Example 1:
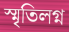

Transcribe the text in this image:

স্মৃতিলগ্ন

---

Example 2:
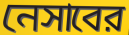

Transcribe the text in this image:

নেসাবের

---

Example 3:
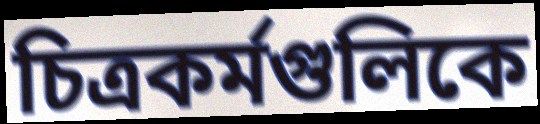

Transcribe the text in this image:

চিত্রকর্মগুলিকে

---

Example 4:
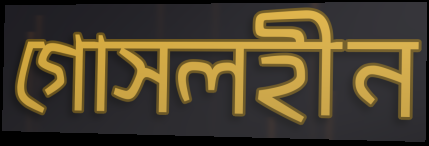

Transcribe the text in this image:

গোসলহীন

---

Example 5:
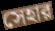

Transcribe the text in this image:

সেহার